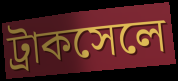
ট্রাকসেলে